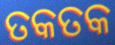
ତକତକ